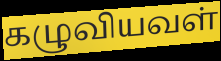
கழுவியவள்